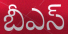
బీఎస్